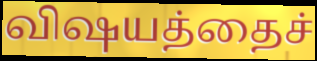
விஷயத்தைச்